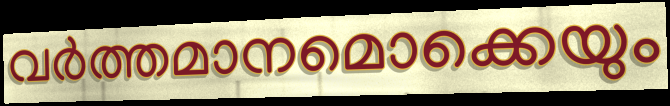
വർത്തമാനമൊക്കെയും